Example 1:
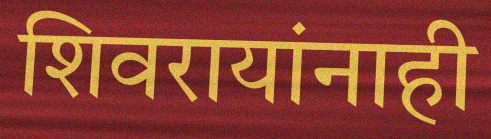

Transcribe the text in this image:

शिवरायांनाही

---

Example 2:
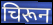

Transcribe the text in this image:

चिरून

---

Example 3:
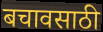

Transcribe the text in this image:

बचावसाठी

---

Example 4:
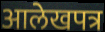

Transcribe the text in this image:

आलेखपत्र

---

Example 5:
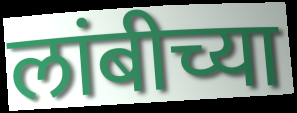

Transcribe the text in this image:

लांबीच्या